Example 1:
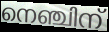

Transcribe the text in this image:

നെഞ്ചിന്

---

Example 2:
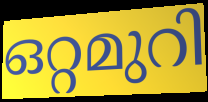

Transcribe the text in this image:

ഒറ്റമുറി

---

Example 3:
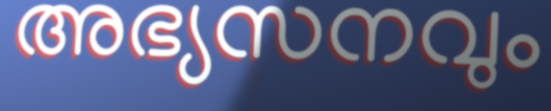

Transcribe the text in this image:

അഭ്യസനവും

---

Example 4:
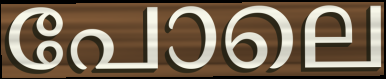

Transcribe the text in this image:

പോലെ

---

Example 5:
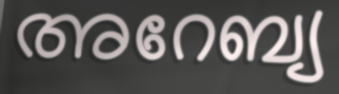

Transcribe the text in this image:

അറേബ്യ